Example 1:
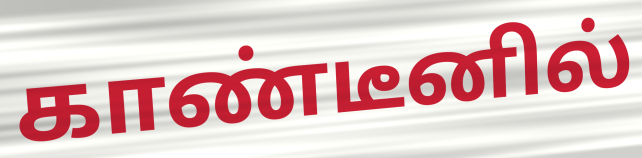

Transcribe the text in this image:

காண்டீனில்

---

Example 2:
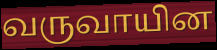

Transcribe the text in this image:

வருவாயின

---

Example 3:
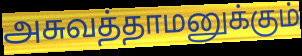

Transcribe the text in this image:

அசுவத்தாமனுக்கும்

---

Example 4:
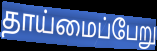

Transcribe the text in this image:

தாய்மைப்பேறு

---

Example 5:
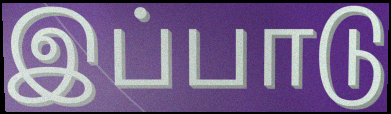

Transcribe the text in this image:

இப்பாடு